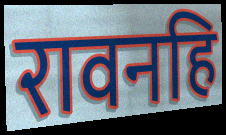
रावनहि